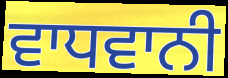
ਵਾਧਵਾਨੀ